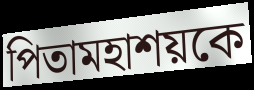
পিতামহাশয়কে